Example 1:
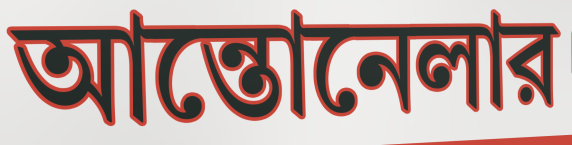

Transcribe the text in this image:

আন্তোনেলার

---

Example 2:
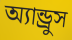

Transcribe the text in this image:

অ্যান্ড্রুস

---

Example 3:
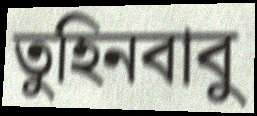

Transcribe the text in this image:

তুহিনবাবু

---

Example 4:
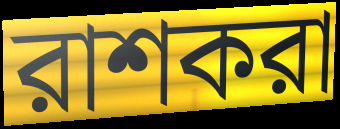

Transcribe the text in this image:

রাশকরা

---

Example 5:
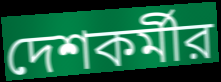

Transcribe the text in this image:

দেশকর্মীর